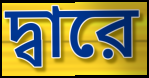
দ্বারে